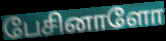
பேசினாளோ